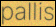
pallis